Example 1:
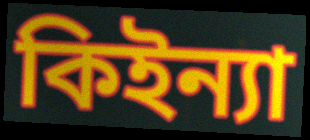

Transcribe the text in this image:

কিইন্যা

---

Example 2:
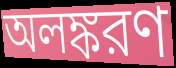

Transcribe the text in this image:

অলঙ্করণ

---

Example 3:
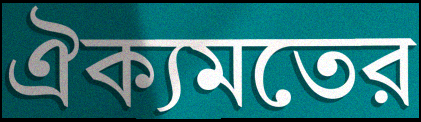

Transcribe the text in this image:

ঐক্যমতের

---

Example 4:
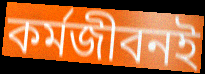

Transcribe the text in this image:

কর্মজীবনই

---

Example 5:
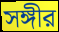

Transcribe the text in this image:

সঙ্গীর